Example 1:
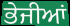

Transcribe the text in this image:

ਭੇਜੀਆਂ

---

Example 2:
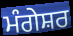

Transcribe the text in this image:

ਮੰਗੇਸ਼ਰ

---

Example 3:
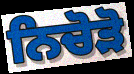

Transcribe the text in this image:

ਨਿਚੋੜੋ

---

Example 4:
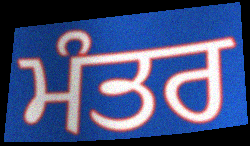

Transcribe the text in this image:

ਮੰਤਰ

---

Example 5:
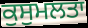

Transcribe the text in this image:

ਕੁਸੁਮਲਤਾ